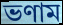
ভণাম